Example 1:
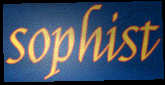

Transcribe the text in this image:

sophist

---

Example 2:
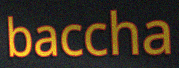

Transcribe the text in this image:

baccha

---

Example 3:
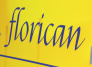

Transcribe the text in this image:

florican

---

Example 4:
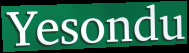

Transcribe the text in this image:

Yesondu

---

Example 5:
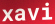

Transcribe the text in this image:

xavi